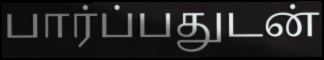
பார்ப்பதுடன்